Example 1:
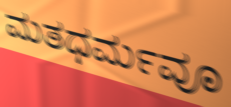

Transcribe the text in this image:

ಮತಧರ್ಮವೂ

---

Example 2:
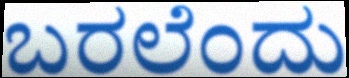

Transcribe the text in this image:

ಬರಲೆಂದು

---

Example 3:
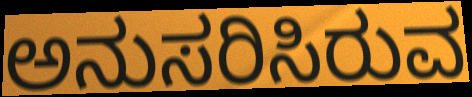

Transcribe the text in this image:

ಅನುಸರಿಸಿರುವ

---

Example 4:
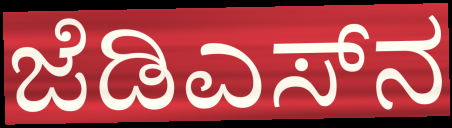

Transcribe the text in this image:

ಜೆಡಿಎಸ್‌ನ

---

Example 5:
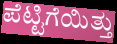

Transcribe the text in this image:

ಪೆಟ್ಟಿಗೆಯಿತ್ತು